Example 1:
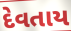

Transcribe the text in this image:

દેવતાય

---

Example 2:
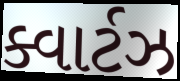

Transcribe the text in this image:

ક્વાર્ટઝ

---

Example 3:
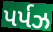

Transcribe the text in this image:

પર્પઝ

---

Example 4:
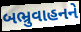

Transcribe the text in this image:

બભ્રુવાહનને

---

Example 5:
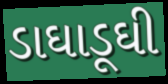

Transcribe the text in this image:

ડાઘાડૂઘી